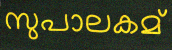
സുപാലകമ്